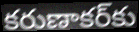
కరుణాకర్‌కు